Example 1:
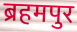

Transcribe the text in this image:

ब्रहमपुर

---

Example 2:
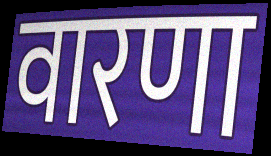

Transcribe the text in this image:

वारणा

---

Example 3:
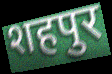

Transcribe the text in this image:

शहपुर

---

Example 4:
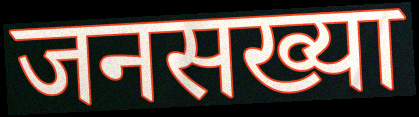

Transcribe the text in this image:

जनसख्या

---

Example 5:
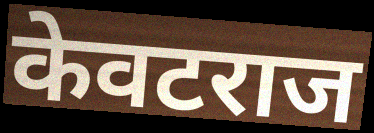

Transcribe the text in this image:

केवटराज